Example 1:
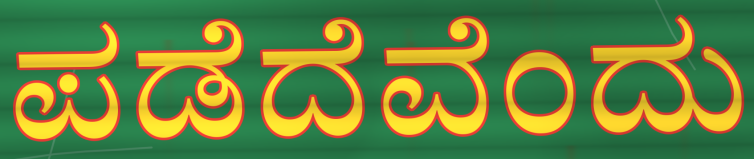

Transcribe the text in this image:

ಪಡೆದೆವೆಂದು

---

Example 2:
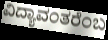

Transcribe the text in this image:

ವಿದ್ಯಾವಂತರೆಂಬ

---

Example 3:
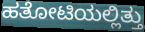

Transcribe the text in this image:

ಹತೋಟಿಯಲ್ಲಿತ್ತು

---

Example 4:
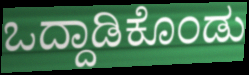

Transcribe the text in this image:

ಒದ್ದಾಡಿಕೊಂಡು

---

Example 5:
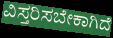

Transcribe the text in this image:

ವಿಸ್ತರಿಸಬೇಕಾಗಿದೆ